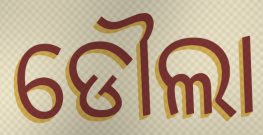
ଡୌଲା